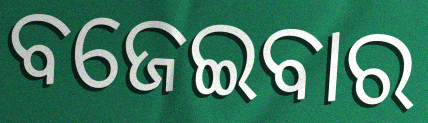
ବଜେଇବାର